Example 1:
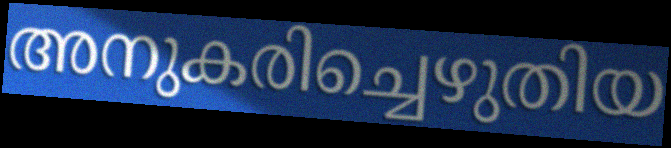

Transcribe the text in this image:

അനുകരിച്ചെഴുതിയ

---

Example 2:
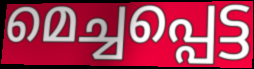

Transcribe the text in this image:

മെച്ചപ്പെട്ട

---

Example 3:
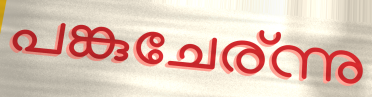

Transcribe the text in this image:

പങ്കുചേര്ന്നു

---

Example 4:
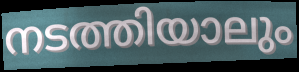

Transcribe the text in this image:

നടത്തിയാലും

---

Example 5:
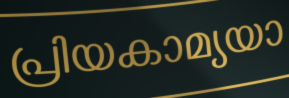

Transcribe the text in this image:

പ്രിയകാമ്യയാ